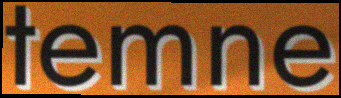
temne